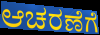
ಆಚರಣೆಗೆ